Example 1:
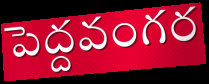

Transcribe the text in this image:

పెద్దవంగర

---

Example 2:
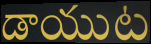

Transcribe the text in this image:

డాయుట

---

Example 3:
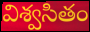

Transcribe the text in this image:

విశ్వసితం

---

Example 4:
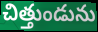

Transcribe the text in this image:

చిత్తుండును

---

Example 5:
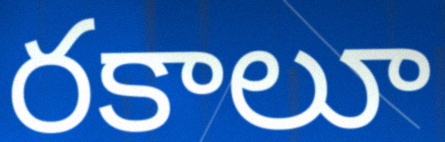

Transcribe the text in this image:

రకాలూ